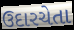
ઉદારચેતા